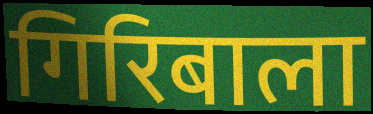
गिरिबाला